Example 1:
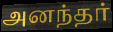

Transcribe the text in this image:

அனந்தர்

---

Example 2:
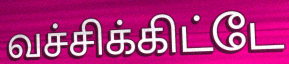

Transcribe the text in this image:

வச்சிக்கிட்டே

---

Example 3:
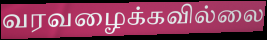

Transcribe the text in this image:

வரவழைக்கவில்லை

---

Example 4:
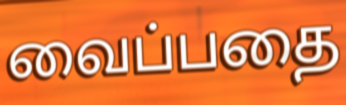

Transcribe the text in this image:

வைப்பதை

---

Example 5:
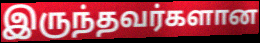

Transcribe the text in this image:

இருந்தவர்களான